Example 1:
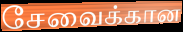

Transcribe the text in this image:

சேவைக்கான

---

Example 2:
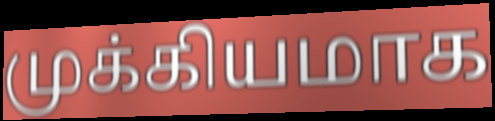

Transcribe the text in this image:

முக்கியமாக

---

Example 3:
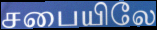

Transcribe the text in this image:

சபையிலே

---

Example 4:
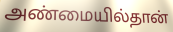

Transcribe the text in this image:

அண்மையில்தான்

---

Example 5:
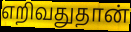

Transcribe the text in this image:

எறிவதுதான்